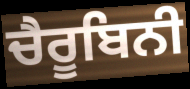
ਚੈਰੂਬਿਨੀ